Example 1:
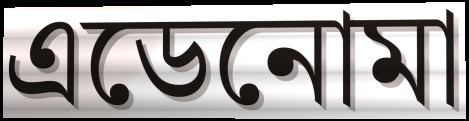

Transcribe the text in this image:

এডেনোমা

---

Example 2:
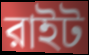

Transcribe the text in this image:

রাইট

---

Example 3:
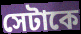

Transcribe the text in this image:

সেটাকে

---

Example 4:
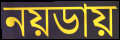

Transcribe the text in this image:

নয়ডায়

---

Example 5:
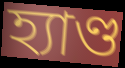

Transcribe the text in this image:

হ্যাণ্ড